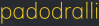
padodralli